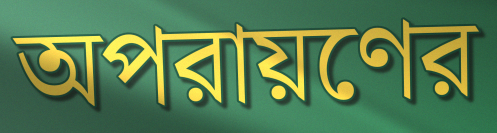
অপরায়ণের